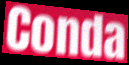
Conda